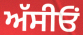
ਅੱਸੀਓਂ